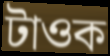
টাওক